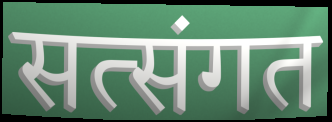
सत्संगत